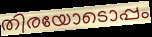
തിരയോടൊപ്പം